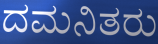
ದಮನಿತರು